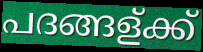
പദങ്ങള്ക്ക്